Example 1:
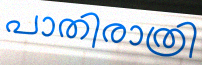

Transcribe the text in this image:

പാതിരാത്രി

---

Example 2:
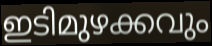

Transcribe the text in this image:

ഇടിമുഴക്കവും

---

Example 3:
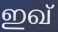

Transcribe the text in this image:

ഇഖ്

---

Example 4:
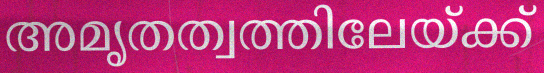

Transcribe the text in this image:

അമൃതത്വത്തിലേയ്ക്ക്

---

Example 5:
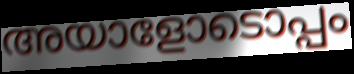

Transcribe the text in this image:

അയാളോടൊപ്പം